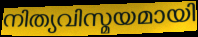
നിത്യവിസ്മയമായി